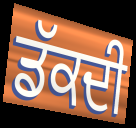
ਡੱਕਦੀ